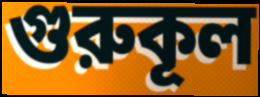
গুরুকূল